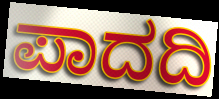
ಪಾದದಿ